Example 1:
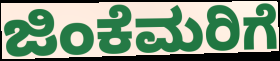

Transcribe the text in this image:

ಜಿಂಕೆಮರಿಗೆ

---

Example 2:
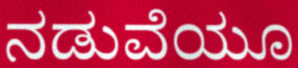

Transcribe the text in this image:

ನಡುವೆಯೂ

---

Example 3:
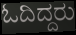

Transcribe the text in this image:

ಓದಿದ್ದರು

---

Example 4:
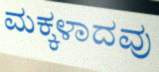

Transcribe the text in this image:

ಮಕ್ಕಳಾದವು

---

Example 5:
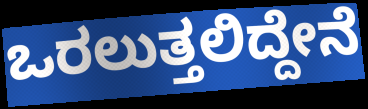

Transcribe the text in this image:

ಒರಲುತ್ತಲಿದ್ದೇನೆ